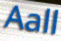
Aall